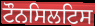
ਟੌਨਸਿਲਟਿਸ